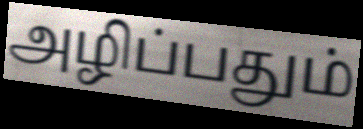
அழிப்பதும்